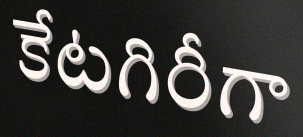
కేటగిరీగా